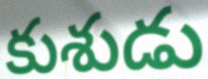
కుశుడు